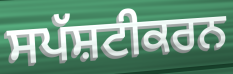
ਸਪੱਸ਼ਟੀਕਰਨ